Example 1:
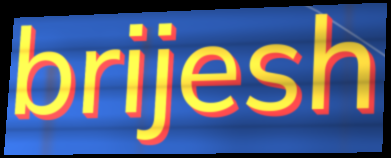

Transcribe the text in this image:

brijesh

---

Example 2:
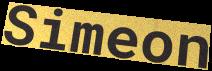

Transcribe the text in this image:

Simeon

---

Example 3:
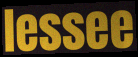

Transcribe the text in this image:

lessee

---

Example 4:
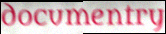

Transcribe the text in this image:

documentry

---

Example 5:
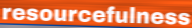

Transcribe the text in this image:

resourcefulness